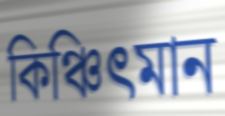
কিঞ্চিৎমান